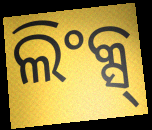
ଲିଂକ୍ସ୍